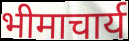
भीमाचार्य